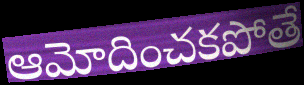
ఆమోదించకపోతే